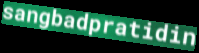
sangbadpratidin